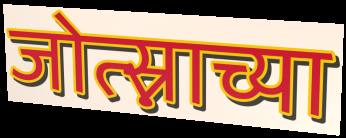
जोत्स्नाच्या